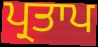
ਪ੍ਰਤਾਪ